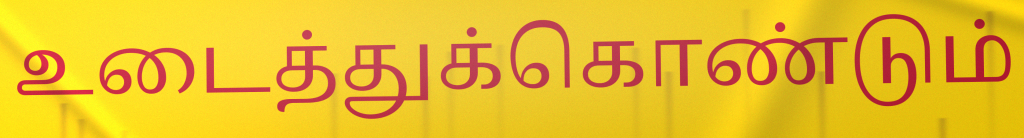
உடைத்துக்கொண்டும்